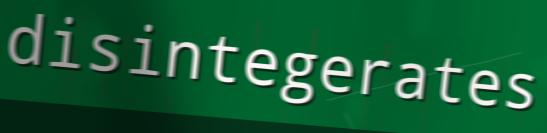
disintegerates